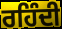
ਰਹਿੰਦੀ